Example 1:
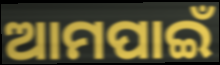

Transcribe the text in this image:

ଆମପାଇଁ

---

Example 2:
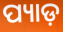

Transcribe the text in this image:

ପ୍ୟାଡ଼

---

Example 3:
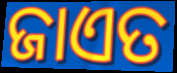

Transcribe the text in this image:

ଜାଏତ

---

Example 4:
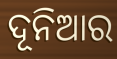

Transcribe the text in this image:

ଦୂନିଆର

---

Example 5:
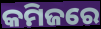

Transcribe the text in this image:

କମିଜରେ